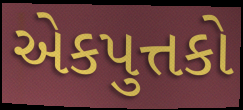
એકપુત્તકો